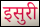
इसुरी